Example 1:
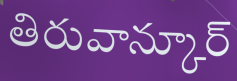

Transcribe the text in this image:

తిరువాన్కూర్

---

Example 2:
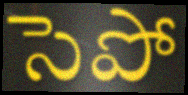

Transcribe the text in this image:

సెపో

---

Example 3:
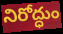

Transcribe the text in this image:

నిరోద్ధుం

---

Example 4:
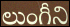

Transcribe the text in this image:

లుంగీని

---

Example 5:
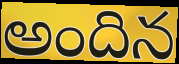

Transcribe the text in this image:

అందిన